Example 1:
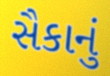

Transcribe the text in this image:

સૈકાનું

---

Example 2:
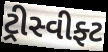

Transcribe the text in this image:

ટ્રીસ્વીફ્ટ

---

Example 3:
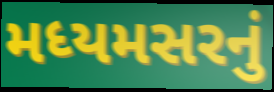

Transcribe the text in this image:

મધ્યમસરનું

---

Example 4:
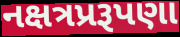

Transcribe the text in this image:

નક્ષત્રપ્રરૂપણા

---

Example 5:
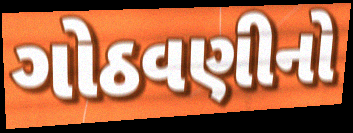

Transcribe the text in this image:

ગોઠવણીનો